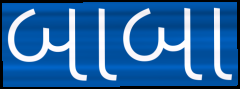
બાબા